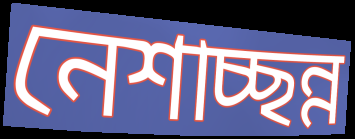
নেশাচ্ছন্ন